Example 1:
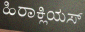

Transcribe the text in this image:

ಹಿರಾಕ್ಲಿಯಸ್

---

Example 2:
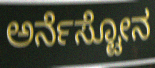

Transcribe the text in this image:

ಅರ್ನೆಸ್ಟೋನ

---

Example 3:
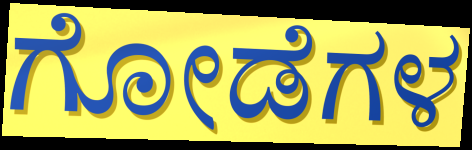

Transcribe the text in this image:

ಗೋಡೆಗಳ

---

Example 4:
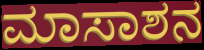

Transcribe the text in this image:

ಮಾಸಾಶನ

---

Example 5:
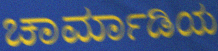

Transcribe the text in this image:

ಚಾರ್ಮಾಡಿಯ